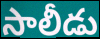
సాలీడు